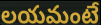
లయమంటే